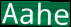
Aahe